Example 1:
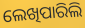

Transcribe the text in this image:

ଲେଖିପାରିଲି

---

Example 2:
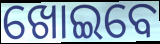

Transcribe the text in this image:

ଖୋଇବେ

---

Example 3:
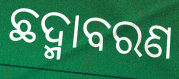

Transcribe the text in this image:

ଛଦ୍ମାବରଣ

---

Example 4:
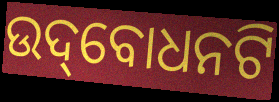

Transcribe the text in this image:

ଉଦ୍‌ବୋଧନଟି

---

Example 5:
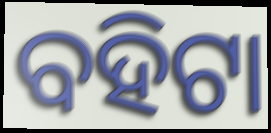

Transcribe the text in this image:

ବହିଟା